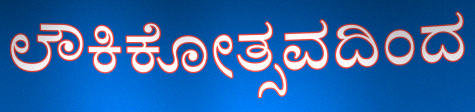
ಲೌಕಿಕೋತ್ಸವದಿಂದ